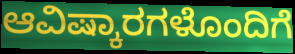
ಆವಿಷ್ಕಾರಗಳೊಂದಿಗೆ